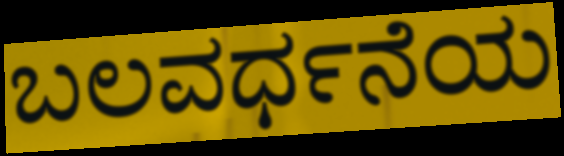
ಬಲವರ್ಧನೆಯ